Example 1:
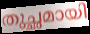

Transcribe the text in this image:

തുച്ഛമായി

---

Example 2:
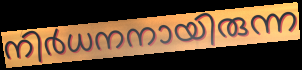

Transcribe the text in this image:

നിർധനനായിരുന്ന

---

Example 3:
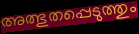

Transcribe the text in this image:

അത്ഭുതപ്പെടുത്തും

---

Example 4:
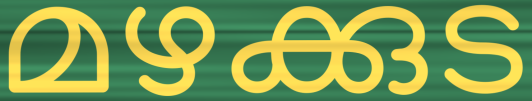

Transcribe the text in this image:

മഴക്കുട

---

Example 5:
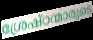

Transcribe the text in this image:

ശ്രേഷ്ഠന്മാരുടെ